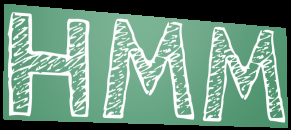
HMM